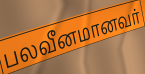
பலவீனமானவர்